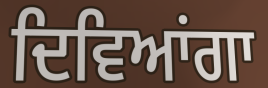
ਦਿਵਿਆਂਗਾ